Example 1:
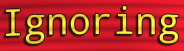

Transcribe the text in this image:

Ignoring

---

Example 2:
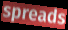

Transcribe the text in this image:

spreads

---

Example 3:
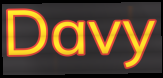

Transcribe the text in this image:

Davy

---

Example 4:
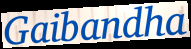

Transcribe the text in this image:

Gaibandha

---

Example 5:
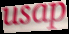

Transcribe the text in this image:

usap